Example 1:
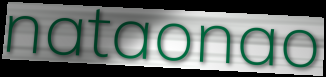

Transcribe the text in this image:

nataonao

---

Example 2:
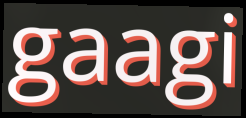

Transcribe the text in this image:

gaagi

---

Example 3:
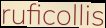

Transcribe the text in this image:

ruficollis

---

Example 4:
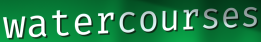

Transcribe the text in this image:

watercourses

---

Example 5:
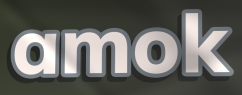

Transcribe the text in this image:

amok